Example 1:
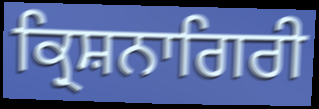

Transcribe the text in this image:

ਕ੍ਰਿਸ਼ਨਾਗਿਰੀ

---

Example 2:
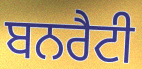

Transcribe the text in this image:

ਬਨਰੈਟੀ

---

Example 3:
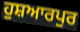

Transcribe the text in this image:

ਹੁਸ਼ਆਰਪੁਰ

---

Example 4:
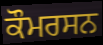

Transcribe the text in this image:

ਕੌਮਰਸਨ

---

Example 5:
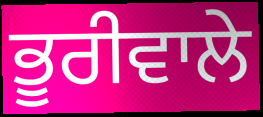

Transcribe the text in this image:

ਭੂਰੀਵਾਲੇ